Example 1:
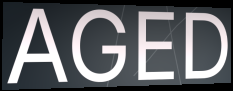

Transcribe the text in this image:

AGED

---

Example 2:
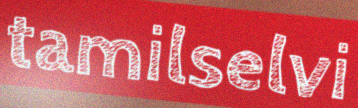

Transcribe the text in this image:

tamilselvi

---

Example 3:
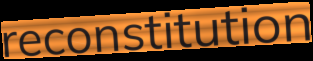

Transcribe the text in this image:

reconstitution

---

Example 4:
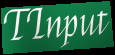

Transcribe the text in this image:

TInput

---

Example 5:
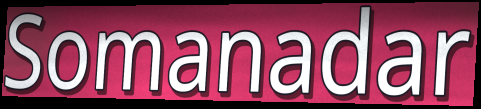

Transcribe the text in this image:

Somanadar